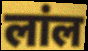
लांल